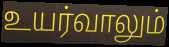
உயர்வாலும்